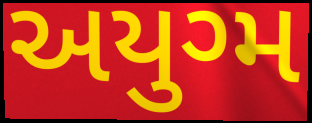
અયુગ્મ